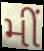
મીં